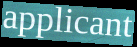
applicant